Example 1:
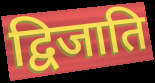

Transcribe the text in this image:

द्विजाति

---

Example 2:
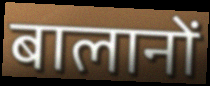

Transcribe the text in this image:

बालानों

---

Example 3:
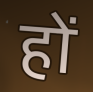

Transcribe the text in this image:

हों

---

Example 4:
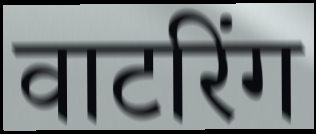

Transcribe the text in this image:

वाटरिंग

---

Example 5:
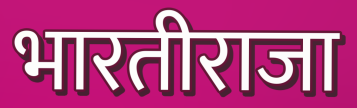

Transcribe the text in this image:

भारतीराजा